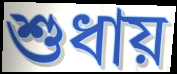
শুধায়